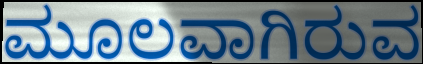
ಮೂಲವಾಗಿರುವ